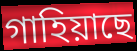
গাহিয়াছে